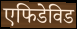
एफिडेविड